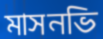
মাসনভি